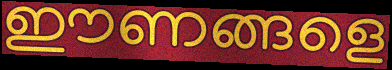
ഈണങ്ങളെ